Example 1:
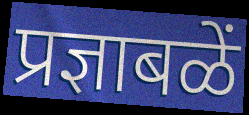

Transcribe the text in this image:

प्रज्ञाबळें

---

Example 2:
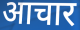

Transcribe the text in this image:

आचार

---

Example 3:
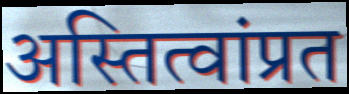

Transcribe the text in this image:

अस्तित्वांप्रत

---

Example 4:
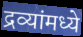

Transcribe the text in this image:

द्रव्यांमध्ये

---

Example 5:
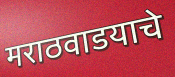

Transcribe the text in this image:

मराठवाडयाचे